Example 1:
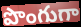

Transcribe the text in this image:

పొంగుగా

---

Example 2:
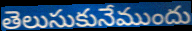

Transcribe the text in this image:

తెలుసుకునేముందు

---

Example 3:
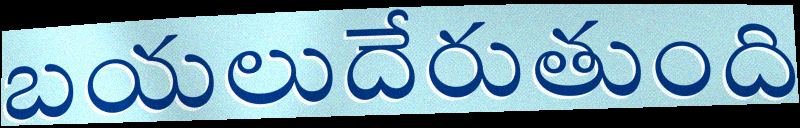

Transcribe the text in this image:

బయలుదేరుతుంది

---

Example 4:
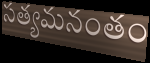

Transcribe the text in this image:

సత్యమనంతం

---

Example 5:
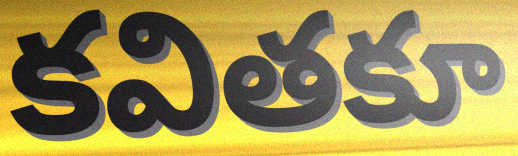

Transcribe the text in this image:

కవితకూ